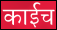
काईच